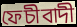
ফেচীবাদী